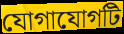
যোগাযোগটি